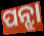
ପନ୍ଝା